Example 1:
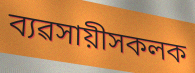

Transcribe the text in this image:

ব্যৱসায়ীসকলক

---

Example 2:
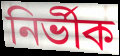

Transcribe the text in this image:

নিৰ্ভীক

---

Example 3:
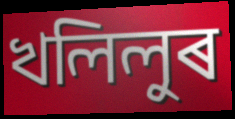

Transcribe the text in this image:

খলিলুৰ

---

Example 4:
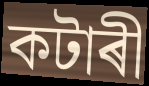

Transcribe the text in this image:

কটাৰী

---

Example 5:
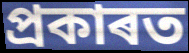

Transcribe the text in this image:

প্ৰকাৰত